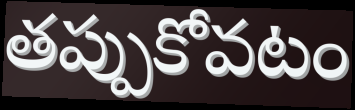
తప్పుకోవటం